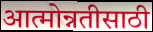
आत्मोन्नतीसाठी